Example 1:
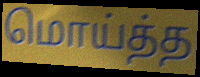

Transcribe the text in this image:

மொய்த்த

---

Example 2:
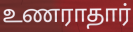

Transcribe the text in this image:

உணராதார்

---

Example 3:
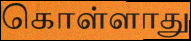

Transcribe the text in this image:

கொள்ளாது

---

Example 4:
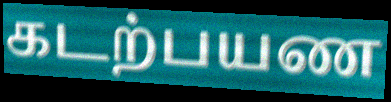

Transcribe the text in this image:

கடற்பயண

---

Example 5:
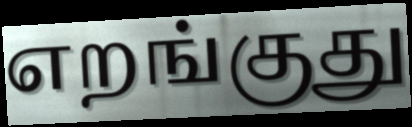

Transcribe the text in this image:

எறங்குது